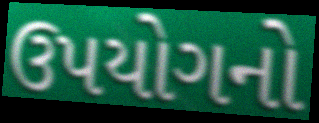
ઉપયોગનો